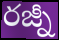
రజ్నీ